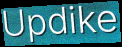
Updike